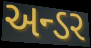
અન્ડર